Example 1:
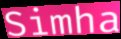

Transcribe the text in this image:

Simha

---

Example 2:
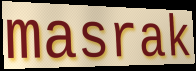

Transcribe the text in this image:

masrak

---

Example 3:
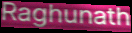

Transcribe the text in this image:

Raghunath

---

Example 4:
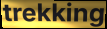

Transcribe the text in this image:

trekking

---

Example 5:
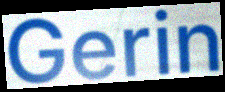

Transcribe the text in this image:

Gerin